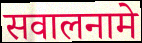
सवालनामे